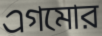
এগমোর